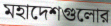
মহাদেশগুলোর